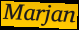
Marjan